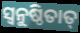
ସ୍ଵନୁଷ୍ଠିତାତ୍